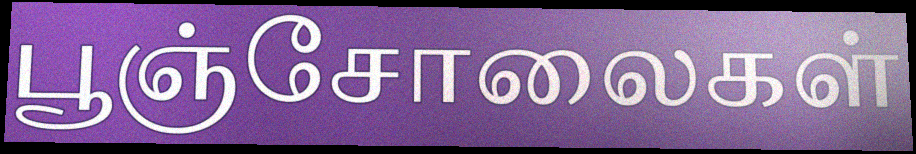
பூஞ்சோலைகள்